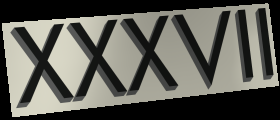
XXXVII